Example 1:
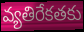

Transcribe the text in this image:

వ్యతిరేకతకు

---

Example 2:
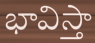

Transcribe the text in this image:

భావిస్తా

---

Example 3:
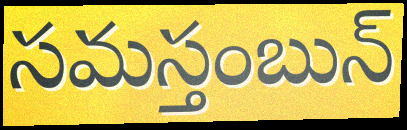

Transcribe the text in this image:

సమస్తంబున్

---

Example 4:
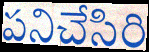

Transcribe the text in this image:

పనిచేసిరి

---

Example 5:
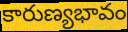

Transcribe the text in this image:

కారుణ్యభావం